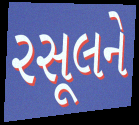
રસૂલને